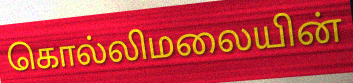
கொல்லிமலையின்